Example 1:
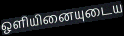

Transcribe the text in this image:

ஒளியினையுடைய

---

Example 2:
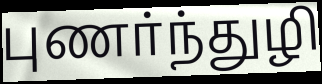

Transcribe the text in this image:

புணர்ந்துழி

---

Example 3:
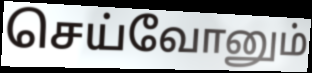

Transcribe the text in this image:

செய்வோனும்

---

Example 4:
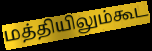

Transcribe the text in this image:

மத்தியிலும்கூட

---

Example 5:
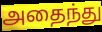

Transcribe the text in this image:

அதைந்து